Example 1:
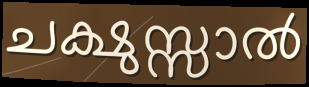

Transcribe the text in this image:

ചക്ഷുസ്സാൽ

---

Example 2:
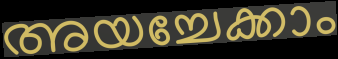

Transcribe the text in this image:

അയച്ചേക്കാം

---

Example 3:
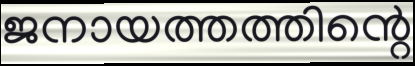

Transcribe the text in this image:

ജനായത്തത്തിന്റെ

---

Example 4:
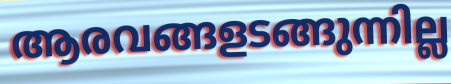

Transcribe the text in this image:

ആരവങ്ങളടങ്ങുന്നില്ല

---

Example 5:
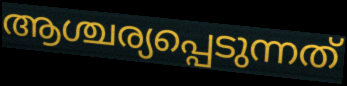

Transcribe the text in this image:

ആശ്ചര്യപ്പെടുന്നത്